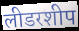
लीडरशीप